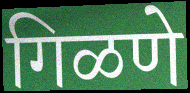
गिळणे